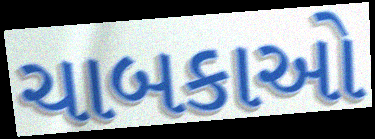
ચાબકાઓ